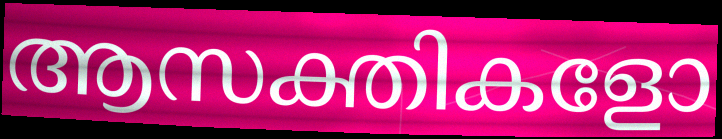
ആസക്തികളോ